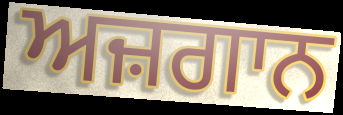
ਅਜ਼ਗਾਨ